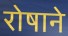
रोषाने